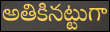
అతికినట్టుగా